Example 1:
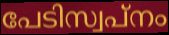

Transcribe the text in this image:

പേടിസ്വപ്നം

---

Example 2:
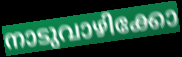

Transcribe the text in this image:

നാടുവാഴിക്കോ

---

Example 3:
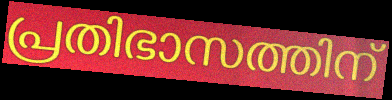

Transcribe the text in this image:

പ്രതിഭാസത്തിന്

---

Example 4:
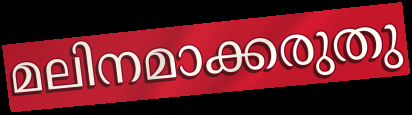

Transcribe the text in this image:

മലിനമാക്കരുതു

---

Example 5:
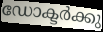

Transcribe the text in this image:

ഡോക്ടർക്കു